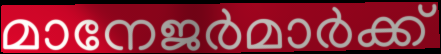
മാനേജർമാർക്ക്